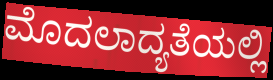
ಮೊದಲಾದ್ಯತೆಯಲ್ಲಿ